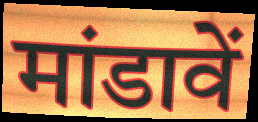
मांडावें